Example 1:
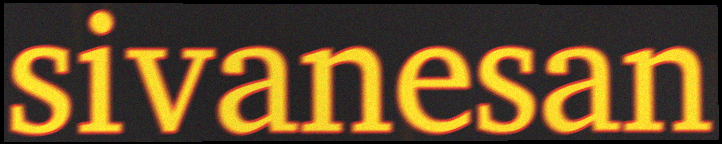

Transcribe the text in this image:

sivanesan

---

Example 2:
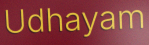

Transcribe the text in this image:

Udhayam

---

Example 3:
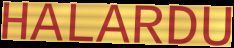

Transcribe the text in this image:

HALARDU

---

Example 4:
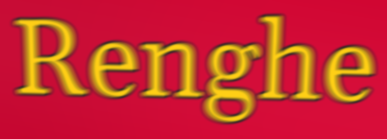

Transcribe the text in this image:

Renghe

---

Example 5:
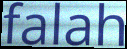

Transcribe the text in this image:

falah